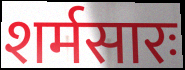
शर्मसारः